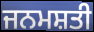
ਜਨਮਸ਼ਤੀ